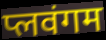
प्लवंगम